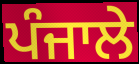
ਪੰਜਾਲੇ